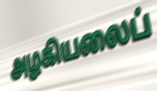
அழகியலைப்